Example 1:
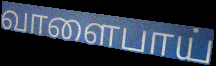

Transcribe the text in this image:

வாளைபாய்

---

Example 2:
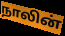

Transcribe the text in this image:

நாலின்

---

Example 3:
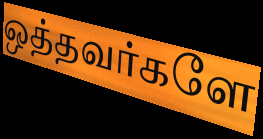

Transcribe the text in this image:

ஒத்தவர்களே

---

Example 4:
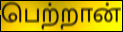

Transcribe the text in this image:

பெற்றான்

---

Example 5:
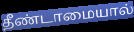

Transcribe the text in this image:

தீண்டாமையால்